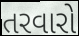
તરવારો